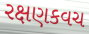
રક્ષણકવચ